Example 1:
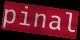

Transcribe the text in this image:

pinal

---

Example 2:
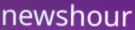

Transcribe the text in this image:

newshour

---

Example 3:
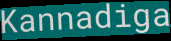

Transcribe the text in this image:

Kannadiga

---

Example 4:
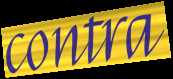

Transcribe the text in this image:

contra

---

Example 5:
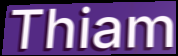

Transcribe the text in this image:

Thiam